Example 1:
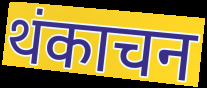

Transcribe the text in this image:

थंकाचन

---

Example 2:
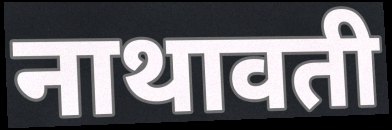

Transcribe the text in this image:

नाथावती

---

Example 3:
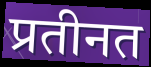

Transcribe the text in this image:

प्रतीनत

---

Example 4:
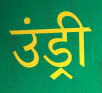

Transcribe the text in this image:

उंड्री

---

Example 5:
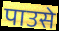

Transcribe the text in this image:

पाउसे